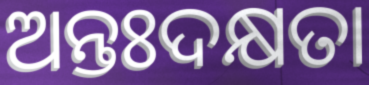
ଅନ୍ତଃଦକ୍ଷତା